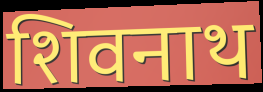
शिवनाथ